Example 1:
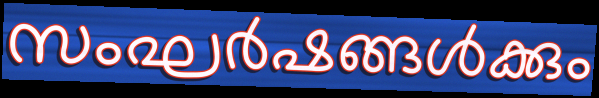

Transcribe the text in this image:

സംഘർഷങ്ങൾക്കും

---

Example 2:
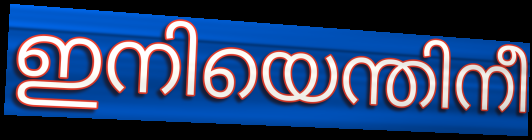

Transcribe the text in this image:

ഇനിയെന്തിനീ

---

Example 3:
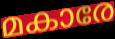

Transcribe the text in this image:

മകാരേ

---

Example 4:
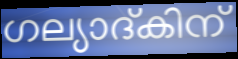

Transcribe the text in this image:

ഗല്യാദ്കിന്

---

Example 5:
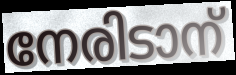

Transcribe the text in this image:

നേരിടാന്